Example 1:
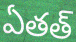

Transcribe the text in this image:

ఏతత్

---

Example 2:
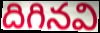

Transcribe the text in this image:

దిగినవి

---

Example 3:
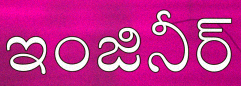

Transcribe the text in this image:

ఇంజినీర్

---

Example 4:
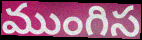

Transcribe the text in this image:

ముంగిస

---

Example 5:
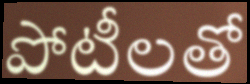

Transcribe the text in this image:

పోటీలతో